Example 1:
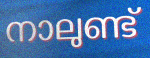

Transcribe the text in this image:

നാലുണ്ട്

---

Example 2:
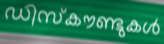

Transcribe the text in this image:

ഡിസ്കൗണ്ടുകൾ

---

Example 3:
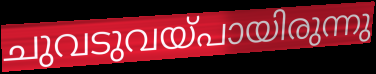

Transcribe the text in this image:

ചുവടുവയ്പായിരുന്നു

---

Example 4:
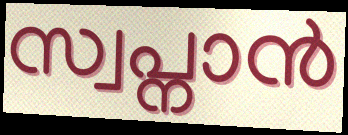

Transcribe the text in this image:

സ്വപ്നാൻ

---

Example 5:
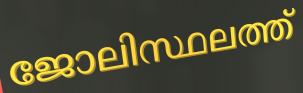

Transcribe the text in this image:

ജോലിസ്ഥലത്ത്